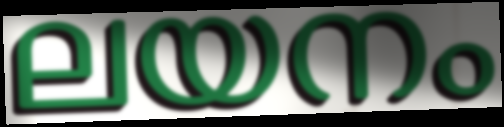
ലയനം